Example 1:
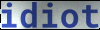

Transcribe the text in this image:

idiot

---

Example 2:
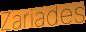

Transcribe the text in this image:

Zariades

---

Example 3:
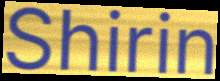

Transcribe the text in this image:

Shirin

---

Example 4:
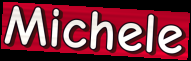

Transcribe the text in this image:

Michele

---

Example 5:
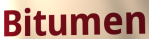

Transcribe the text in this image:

Bitumen